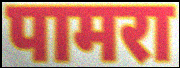
पामरा